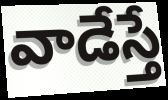
వాడేస్తే